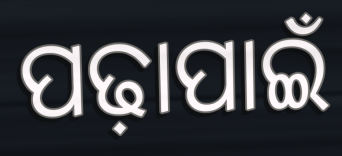
ପଢ଼ାପାଇଁ